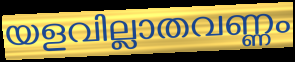
യളവില്ലാതവണ്ണം